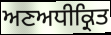
ਅਣਅਧੀਕ੍ਰਿਤ